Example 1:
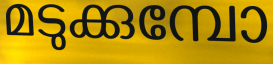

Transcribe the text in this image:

മടുക്കുമ്പോ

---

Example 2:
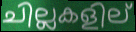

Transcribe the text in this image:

ചില്ലകളില്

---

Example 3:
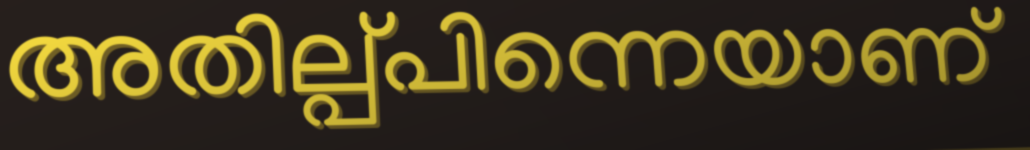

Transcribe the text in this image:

അതില്പ്പിന്നെയാണ്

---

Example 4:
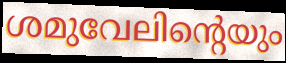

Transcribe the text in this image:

ശമുവേലിന്റെയും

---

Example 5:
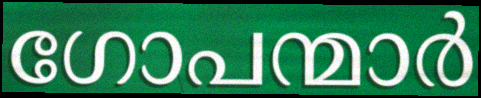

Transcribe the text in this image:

ഗോപന്മാർ